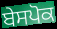
ਬੇਸਪੋਕ